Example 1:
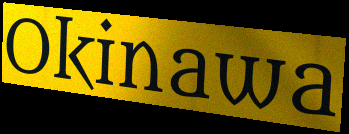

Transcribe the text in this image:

Okinawa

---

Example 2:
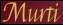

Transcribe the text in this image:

Murti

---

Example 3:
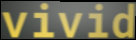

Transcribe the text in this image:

vivid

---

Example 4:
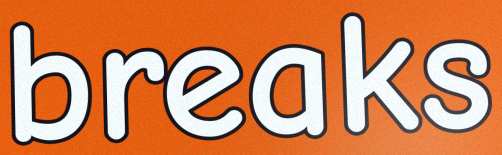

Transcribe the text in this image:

breaks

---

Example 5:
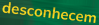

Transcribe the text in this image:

desconhecem